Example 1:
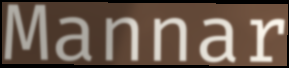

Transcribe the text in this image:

Mannar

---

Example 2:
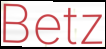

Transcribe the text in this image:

Betz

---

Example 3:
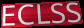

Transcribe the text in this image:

ECLSS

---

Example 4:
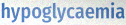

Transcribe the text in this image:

hypoglycaemia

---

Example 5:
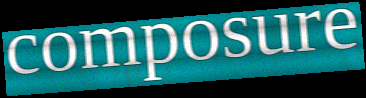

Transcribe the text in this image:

composure